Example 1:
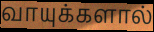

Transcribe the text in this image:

வாயுக்களால்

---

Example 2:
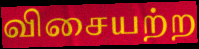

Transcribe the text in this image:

விசையற்ற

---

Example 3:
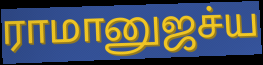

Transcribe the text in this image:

ராமானுஜச்ய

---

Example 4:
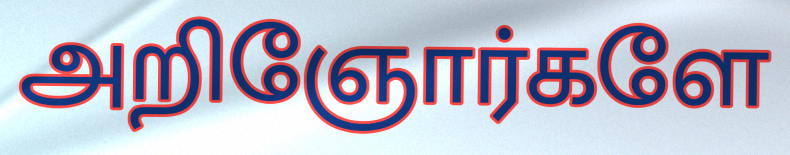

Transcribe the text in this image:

அறிஞோர்களே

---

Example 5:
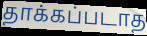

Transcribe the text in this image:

தாக்கப்படாத